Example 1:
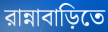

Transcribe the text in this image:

রান্নাবাড়িতে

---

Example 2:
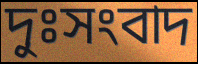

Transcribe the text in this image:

দুঃসংবাদ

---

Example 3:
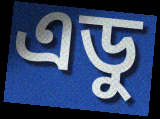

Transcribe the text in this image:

এডু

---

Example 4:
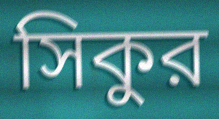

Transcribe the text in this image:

সিকুর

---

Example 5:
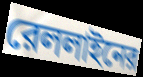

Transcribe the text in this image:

রেললাইনের